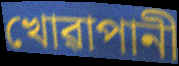
খোৱাপানী